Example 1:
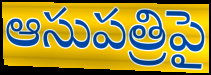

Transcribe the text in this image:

ఆసుపత్రిపై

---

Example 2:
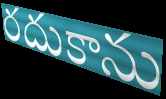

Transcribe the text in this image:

రదుకాను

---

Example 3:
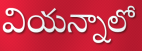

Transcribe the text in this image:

వియన్నాలో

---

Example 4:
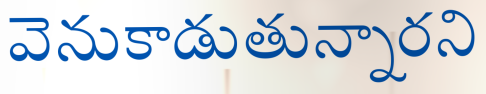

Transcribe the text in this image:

వెనుకాడుతున్నారని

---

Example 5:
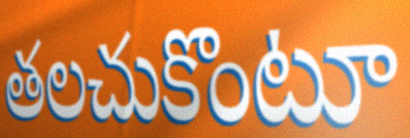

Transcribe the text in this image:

తలచుకొంటూ